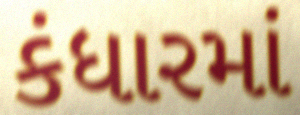
કંધારમાં